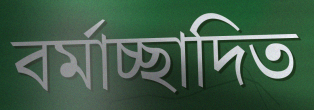
বর্মাচ্ছাদিত